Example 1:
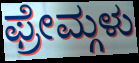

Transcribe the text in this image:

ಫ್ರೇಮ್ಗಳು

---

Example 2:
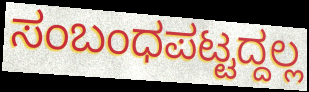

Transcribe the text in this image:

ಸಂಬಂಧಪಟ್ಟದ್ದಲ್ಲ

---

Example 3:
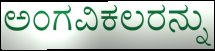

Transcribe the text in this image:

ಅಂಗವಿಕಲರನ್ನು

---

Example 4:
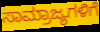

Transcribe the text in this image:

ಸಾಮ್ರಾಜ್ಯಗಳಿಗೆ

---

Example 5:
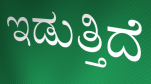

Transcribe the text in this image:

ಇಡುತ್ತಿದೆ